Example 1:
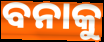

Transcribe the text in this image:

ବନାକୁ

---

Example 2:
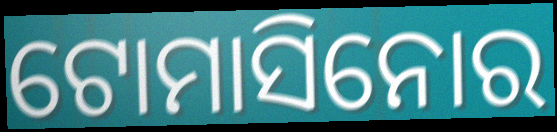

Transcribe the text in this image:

ଟୋମାସିନୋର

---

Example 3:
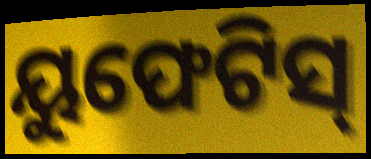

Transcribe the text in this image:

ୟୁଫେଟିସ୍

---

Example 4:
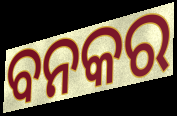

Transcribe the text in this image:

ବନକର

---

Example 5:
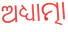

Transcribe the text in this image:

ଅଧ୍ୟାତ୍ମା